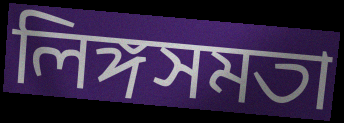
লিঙ্গসমতা